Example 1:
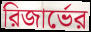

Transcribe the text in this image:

রিজার্ভের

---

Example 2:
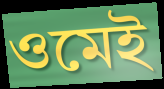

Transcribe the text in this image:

ওমেই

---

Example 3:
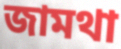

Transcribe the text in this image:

জামথা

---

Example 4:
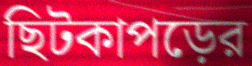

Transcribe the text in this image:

ছিটকাপড়ের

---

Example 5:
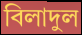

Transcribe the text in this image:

বিলাদুল